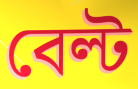
বেল্ট